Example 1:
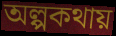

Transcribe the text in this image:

অল্পকথায়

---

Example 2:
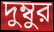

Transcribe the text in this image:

দুম্বুর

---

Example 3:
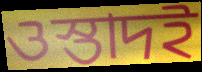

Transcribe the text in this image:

ওস্তাদই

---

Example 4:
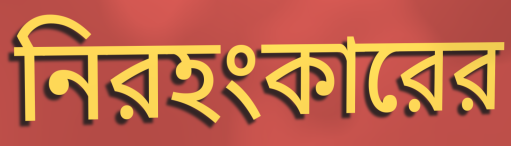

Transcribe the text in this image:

নিরহংকারের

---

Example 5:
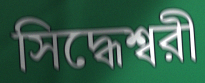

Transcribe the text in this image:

সিদ্ধেশ্বরী